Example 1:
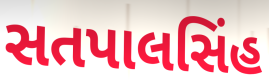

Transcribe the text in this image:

સતપાલસિંહ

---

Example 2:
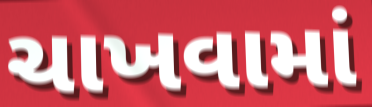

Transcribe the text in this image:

ચાખવામાં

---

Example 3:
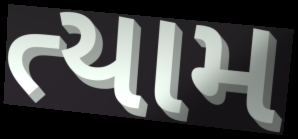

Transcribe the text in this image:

ત્યામ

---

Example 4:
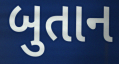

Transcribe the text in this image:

બુતાન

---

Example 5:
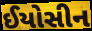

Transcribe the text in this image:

ઈયોસીન